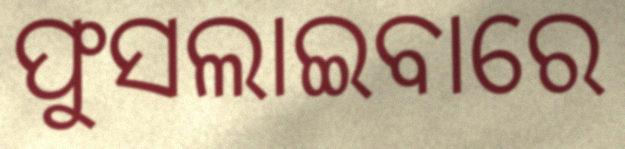
ଫୁସଲାଇବାରେ